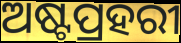
ଅଷ୍ଟପ୍ରହରୀ